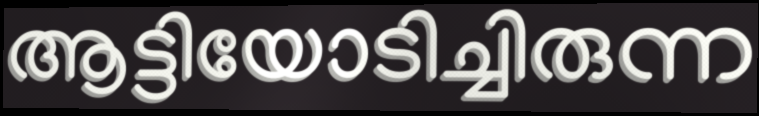
ആട്ടിയോടിച്ചിരുന്ന